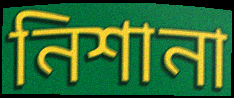
নিশানা